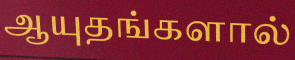
ஆயுதங்களால்